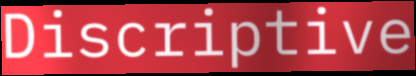
Discriptive